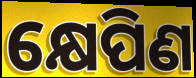
କ୍ଷେପିଣ